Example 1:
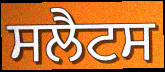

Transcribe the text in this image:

ਸਲੈਟਸ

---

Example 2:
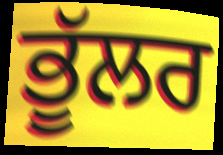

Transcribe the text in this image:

ਭੂੱਲਰ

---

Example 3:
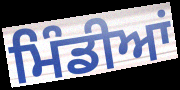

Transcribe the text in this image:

ਮਿੰਡੀਆਂ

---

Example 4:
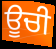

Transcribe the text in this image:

ਊਚੀ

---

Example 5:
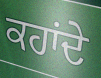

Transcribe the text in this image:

ਕਹਾਂਦੇ